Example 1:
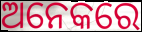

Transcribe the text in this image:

ଅନେକରେ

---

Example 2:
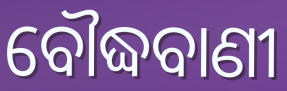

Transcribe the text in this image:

ବୌଦ୍ଧବାଣୀ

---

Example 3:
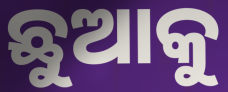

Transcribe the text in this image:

ଛୁଆକୁ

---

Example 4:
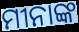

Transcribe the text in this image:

ମୀନାଙ୍କ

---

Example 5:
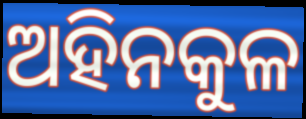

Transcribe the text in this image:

ଅହିନକୁଳ